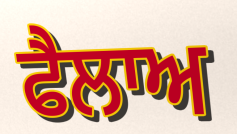
ਫੈਲਾਅ